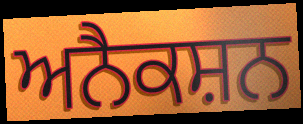
ਅਨੈਕਸ਼ਨ